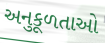
અનુકૂળતાઓ